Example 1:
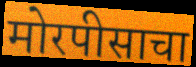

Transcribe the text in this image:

मोरपीसाचा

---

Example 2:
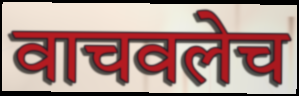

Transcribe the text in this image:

वाचवलेच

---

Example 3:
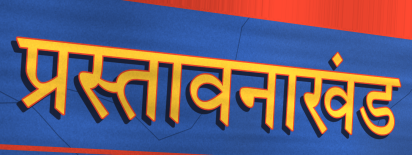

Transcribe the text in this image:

प्रस्तावनाखंड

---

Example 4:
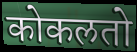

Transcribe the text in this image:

कोकलतो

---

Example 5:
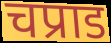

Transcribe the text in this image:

चप्राड